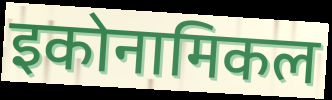
इकोनामिकल